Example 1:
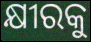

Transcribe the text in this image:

କ୍ଷୀରକୁ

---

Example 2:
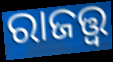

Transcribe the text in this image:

ରାଜତ୍ତ୍ୱ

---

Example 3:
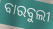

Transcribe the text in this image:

ବାରବୁଲୀ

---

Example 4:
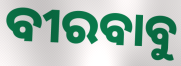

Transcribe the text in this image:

ବୀରବାବୁ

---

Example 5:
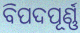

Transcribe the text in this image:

ବିପଦପୂର୍ଣ୍ଣ